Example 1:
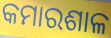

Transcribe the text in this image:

କମାରଶାଳ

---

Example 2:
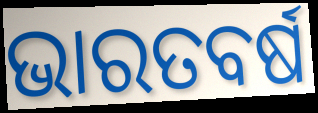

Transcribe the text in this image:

ଭାରତବର୍ଷ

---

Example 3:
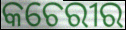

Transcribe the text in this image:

କଚେରୀର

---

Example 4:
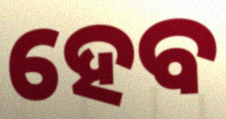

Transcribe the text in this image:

ହେବ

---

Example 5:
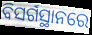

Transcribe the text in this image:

ବିସର୍ଗସ୍ଥାନରେ